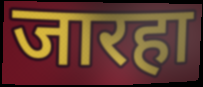
जारहा